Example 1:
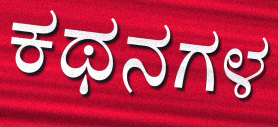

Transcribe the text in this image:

ಕಥನಗಳ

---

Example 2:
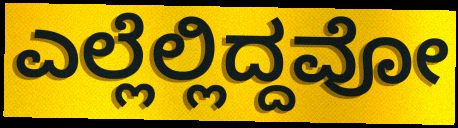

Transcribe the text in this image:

ಎಲ್ಲೆಲ್ಲಿದ್ದವೋ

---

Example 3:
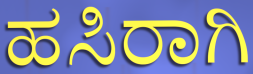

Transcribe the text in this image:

ಹಸಿರಾಗಿ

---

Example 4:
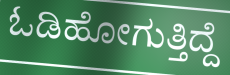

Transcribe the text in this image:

ಓಡಿಹೋಗುತ್ತಿದ್ದೆ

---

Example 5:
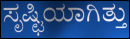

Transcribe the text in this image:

ಸೃಷ್ಟಿಯಾಗಿತ್ತು